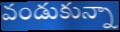
వండుకున్నా